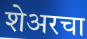
शेअरचा